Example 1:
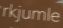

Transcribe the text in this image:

rkjumle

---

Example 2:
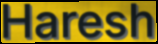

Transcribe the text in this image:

Haresh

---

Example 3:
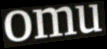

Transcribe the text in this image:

omu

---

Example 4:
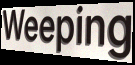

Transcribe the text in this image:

Weeping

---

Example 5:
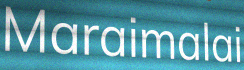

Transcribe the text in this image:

Maraimalai